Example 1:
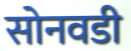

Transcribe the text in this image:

सोनवडी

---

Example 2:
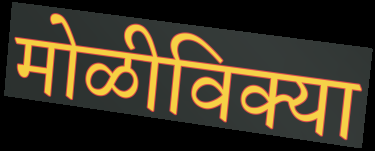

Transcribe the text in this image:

मोळीविक्या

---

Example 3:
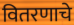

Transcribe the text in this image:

वितरणाचे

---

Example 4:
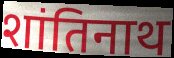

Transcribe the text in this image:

शांतिनाथ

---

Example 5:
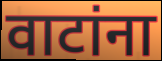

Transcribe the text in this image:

वाटांना